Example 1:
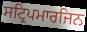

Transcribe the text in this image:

ਸਟ੍ਰਿਪਮਾਰਜਿਨ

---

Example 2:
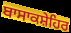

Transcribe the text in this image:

ਬਾਸਾਕਸ਼ੇਹਿਰ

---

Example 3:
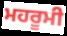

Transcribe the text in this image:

ਮਹਰੂਮੀ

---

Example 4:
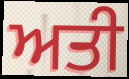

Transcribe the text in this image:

ਅਤੀ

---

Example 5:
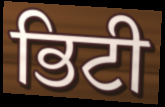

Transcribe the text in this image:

ਭਿਟੀ